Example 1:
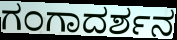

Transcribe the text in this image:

ಗಂಗಾದರ್ಶನ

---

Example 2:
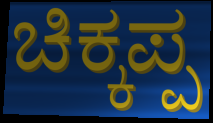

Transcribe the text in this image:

ಚಿಕ್ಕಪ್ಪ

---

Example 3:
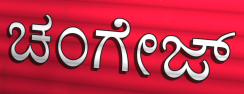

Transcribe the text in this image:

ಚಂಗೇಜ್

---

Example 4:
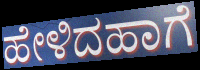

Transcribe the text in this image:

ಹೇಳಿದಹಾಗೆ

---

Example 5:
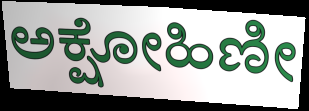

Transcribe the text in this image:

ಅಕ್ಷೋಹಿಣೀ